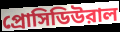
প্রোসিডিউরাল